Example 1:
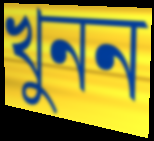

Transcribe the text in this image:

খুনন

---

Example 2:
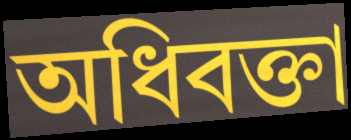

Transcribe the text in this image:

অধিবক্তা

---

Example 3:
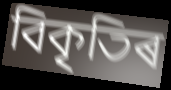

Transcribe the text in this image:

বিকৃতিৰ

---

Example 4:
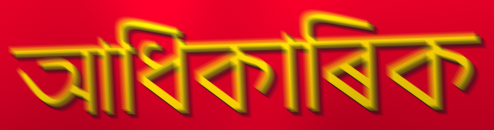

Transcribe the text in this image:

আধিকাৰিক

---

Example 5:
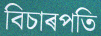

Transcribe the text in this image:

বিচাৰপতি